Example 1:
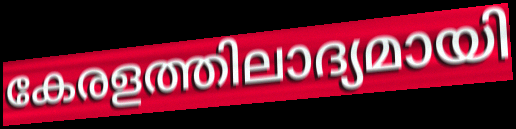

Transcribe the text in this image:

കേരളത്തിലാദ്യമായി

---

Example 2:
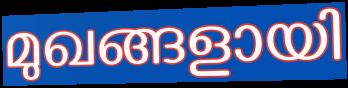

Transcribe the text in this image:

മുഖങ്ങളായി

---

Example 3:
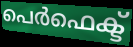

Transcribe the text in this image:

പെർഫെക്ട്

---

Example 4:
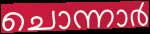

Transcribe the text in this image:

ചൊന്നാർ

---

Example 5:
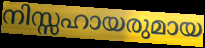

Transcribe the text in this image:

നിസ്സഹായരുമായ